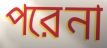
পরেনা